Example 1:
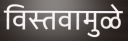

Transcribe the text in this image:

विस्तवामुळे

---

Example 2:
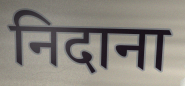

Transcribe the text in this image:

निदाना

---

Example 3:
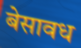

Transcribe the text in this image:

बेसावध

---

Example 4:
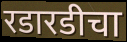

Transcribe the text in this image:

रडारडीचा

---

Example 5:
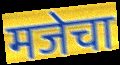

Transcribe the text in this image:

मजेचा